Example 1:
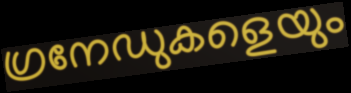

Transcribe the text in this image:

ഗ്രനേഡുകളെയും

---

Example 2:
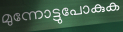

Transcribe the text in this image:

മുന്നോട്ടുപോകുക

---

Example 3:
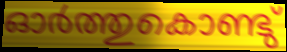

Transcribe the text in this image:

ഓർത്തുകൊണ്ടു്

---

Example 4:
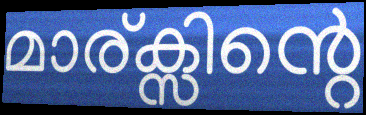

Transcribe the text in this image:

മാര്ക്സിന്റെ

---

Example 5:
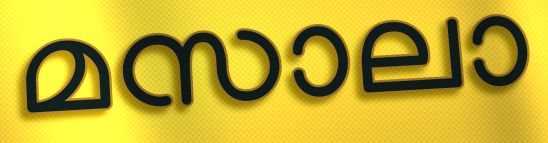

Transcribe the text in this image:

മസാലാ